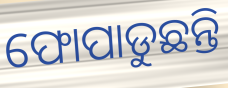
ଫୋପାଡୁଛନ୍ତି